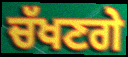
ਚੱਖਣਗੇ